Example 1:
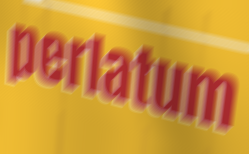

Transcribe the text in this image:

perlatum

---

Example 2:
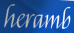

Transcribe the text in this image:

heramb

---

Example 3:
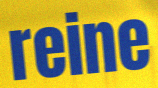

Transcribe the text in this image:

reine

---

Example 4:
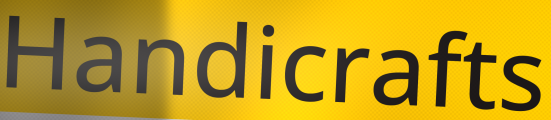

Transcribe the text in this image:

Handicrafts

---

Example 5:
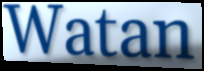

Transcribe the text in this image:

Watan